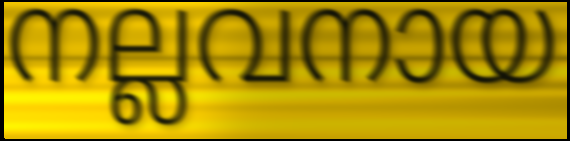
നല്ലവനായ